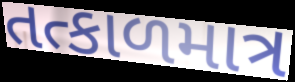
તત્કાળમાત્ર